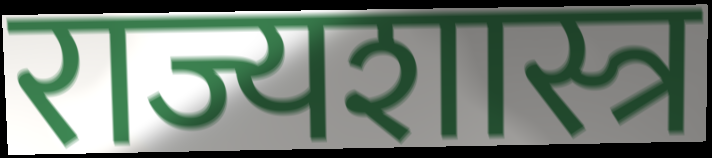
राज्यशास्त्र